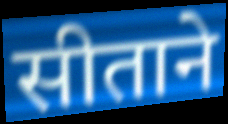
सीताने